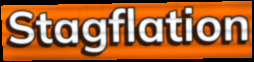
Stagflation